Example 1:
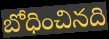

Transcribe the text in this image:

బోధించినది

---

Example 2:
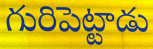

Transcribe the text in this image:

గురిపెట్టాడు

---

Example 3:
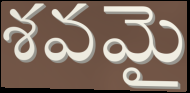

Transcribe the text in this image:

శవమై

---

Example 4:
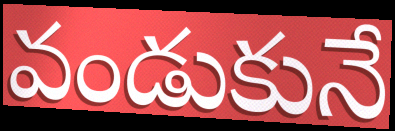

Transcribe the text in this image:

వండుకునే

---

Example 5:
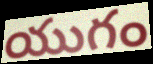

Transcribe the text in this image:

యుగం